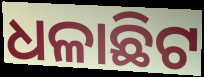
ଧଳାଛିଟ